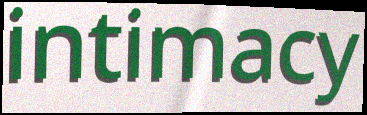
intimacy